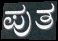
ಪುತ